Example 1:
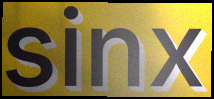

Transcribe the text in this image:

sinx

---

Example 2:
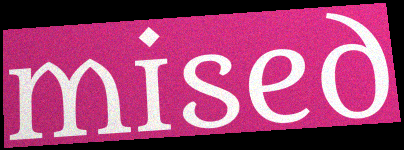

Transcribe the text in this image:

mised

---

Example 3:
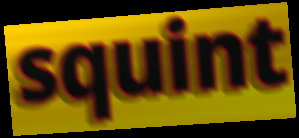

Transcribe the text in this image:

squint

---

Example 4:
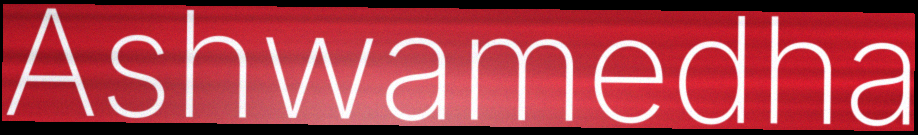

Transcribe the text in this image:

Ashwamedha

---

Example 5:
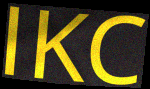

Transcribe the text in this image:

IKC